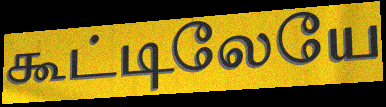
கூட்டிலேயே